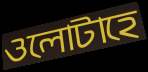
ওলোটাহে